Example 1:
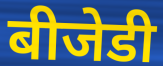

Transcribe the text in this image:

बीजेडी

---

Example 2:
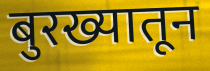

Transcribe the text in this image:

बुरख्यातून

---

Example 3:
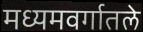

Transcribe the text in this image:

मध्यमवर्गातले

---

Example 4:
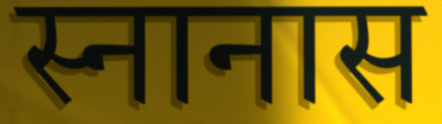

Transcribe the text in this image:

स्नानास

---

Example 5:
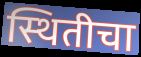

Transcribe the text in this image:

स्थितीचा